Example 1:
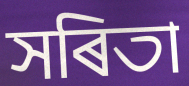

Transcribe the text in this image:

সৰিতা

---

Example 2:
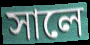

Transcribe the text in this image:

সালে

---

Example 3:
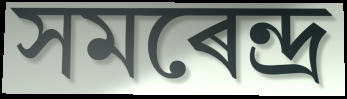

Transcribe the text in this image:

সমৰেন্দ্ৰ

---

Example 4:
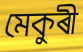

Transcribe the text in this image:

মেকুৰী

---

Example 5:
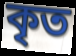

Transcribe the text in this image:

কৃত